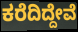
ಕರೆದಿದ್ದೇವೆ